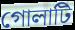
গোলাটি